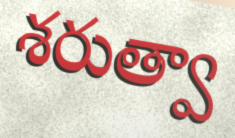
శరుత్వా